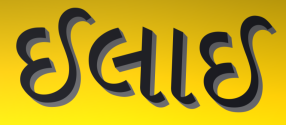
ઈલાઈ